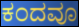
ಕಂದವೂ